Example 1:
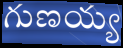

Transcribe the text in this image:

గుణయ్య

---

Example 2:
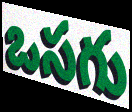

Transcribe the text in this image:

ఒసగు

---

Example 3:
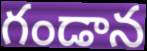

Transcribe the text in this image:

గండాన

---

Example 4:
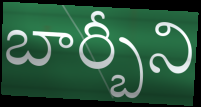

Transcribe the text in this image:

బార్బీని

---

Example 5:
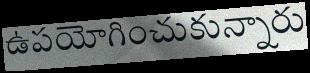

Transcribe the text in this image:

ఉపయోగించుకున్నారు